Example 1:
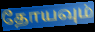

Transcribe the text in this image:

தோயவும்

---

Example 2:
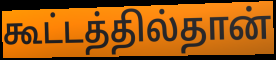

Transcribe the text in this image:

கூட்டத்தில்தான்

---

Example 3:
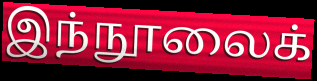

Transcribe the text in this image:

இந்நூலைக்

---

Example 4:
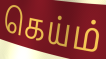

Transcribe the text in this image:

கெய்ம்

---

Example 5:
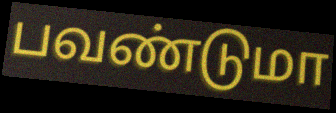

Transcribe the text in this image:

பவண்டுமா